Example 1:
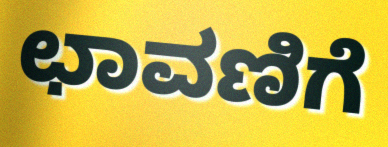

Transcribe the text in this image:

ಛಾವಣಿಗೆ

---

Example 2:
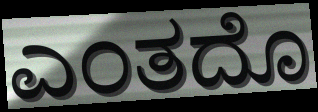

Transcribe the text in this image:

ಎಂತದೊ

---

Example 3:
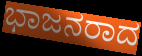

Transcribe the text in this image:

ಭಾಜನರಾದ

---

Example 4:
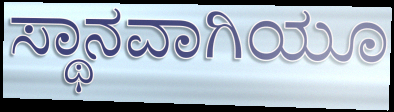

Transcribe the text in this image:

ಸ್ಥಾನವಾಗಿಯೂ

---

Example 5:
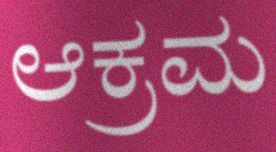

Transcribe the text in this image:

ಆಕ್ರಮ